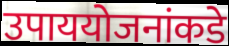
उपाययोजनांकडे